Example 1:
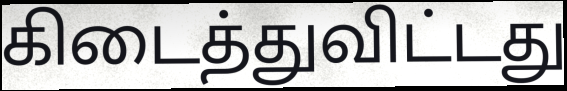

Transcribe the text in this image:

கிடைத்துவிட்டது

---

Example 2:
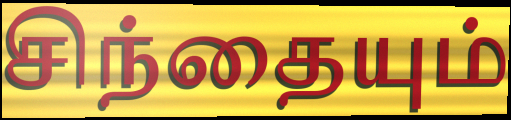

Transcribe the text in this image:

சிந்தையும்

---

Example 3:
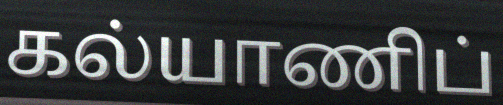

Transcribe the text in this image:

கல்யாணிப்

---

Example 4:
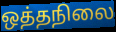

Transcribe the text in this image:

ஒத்தநிலை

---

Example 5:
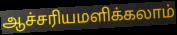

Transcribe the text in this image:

ஆச்சரியமளிக்கலாம்